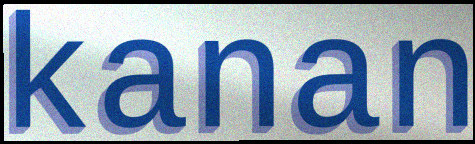
kanan